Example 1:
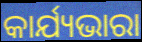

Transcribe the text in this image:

କାର୍ଯ୍ୟଭାରା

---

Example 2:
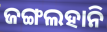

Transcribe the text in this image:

ଜଙ୍ଗଲହାନି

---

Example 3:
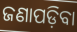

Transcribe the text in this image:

ଜଣାପଡ଼ିବା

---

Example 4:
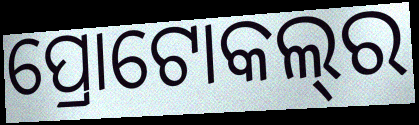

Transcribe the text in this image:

ପ୍ରୋଟୋକଲ୍‌ର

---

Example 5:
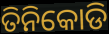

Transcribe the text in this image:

ତିନିକୋଡି